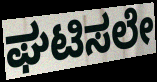
ಘಟಿಸಲೇ